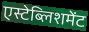
एस्टेब्लिशमेंट